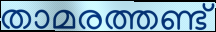
താമരത്തണ്ട്